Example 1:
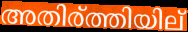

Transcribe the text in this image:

അതിര്ത്തിയില്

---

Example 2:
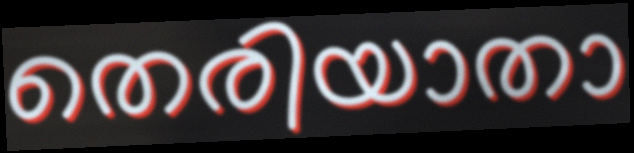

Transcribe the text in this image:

തെരിയാതാ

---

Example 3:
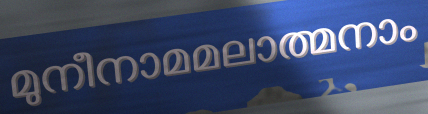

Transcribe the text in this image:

മുനീനാമമലാത്മനാം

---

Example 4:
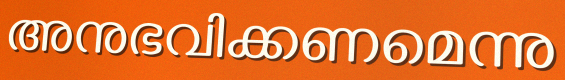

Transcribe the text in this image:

അനുഭവിക്കണമെന്നു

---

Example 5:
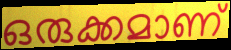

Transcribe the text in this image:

ഒരുക്കമാണ്